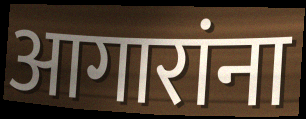
आगारांना